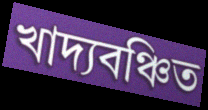
খাদ্যবঞ্চিত